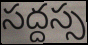
సద్దస్స